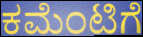
ಕಮೆಂಟಿಗೆ